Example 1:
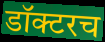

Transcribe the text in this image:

डॉक्टरच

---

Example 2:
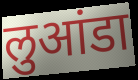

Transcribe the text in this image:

लुआंडा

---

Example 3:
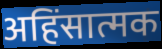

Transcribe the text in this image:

अहिंसात्मक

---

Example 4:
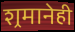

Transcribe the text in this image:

श्रमानेही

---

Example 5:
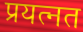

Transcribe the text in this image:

प्रयत्नत